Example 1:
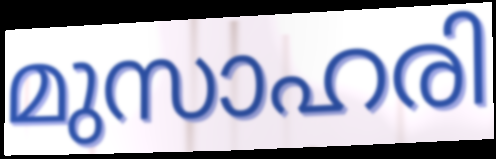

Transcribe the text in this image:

മുസാഹരി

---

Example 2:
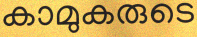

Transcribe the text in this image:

കാമുകരുടെ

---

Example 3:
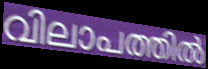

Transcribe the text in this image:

വിലാപത്തിൽ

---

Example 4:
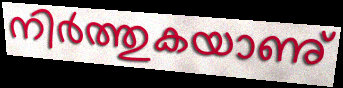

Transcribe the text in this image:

നിർത്തുകയാണു്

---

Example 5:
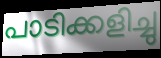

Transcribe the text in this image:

പാടിക്കളിച്ചു